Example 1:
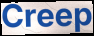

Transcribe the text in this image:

Creep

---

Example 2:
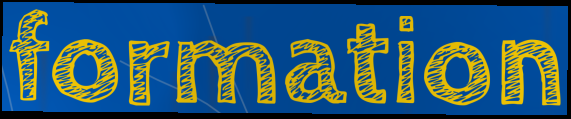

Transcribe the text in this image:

formation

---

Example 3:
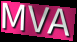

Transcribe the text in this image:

MVA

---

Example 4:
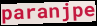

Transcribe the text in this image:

paranjpe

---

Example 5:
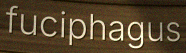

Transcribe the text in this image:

fuciphagus